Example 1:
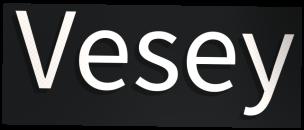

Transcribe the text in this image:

Vesey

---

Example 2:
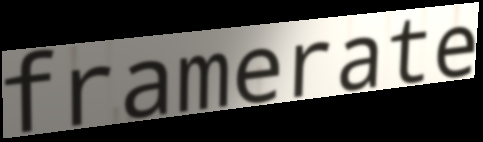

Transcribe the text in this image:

framerate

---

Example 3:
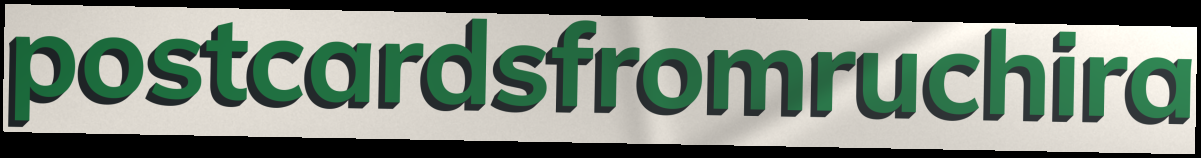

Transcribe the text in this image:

postcardsfromruchira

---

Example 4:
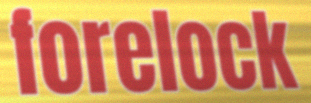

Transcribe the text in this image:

forelock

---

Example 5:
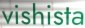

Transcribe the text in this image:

vishista